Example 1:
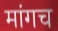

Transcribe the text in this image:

मांगच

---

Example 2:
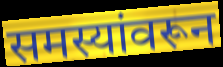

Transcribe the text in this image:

समस्यांवरून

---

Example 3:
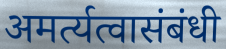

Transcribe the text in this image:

अमर्त्यत्वासंबंधी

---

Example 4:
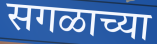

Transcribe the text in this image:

सगळाच्या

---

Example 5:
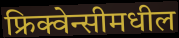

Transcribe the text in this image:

फ्रिक्वेन्सीमधील